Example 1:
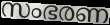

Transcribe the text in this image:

സംഭരണ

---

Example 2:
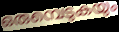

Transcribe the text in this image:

ഒരുമ്പെടുകയും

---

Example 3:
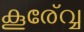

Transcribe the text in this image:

കൂര്വ്വേ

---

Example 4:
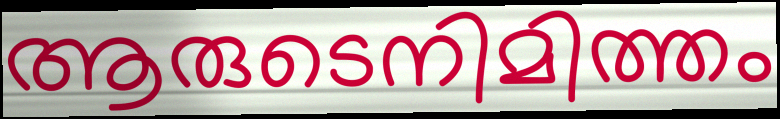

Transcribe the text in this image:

ആരുടെനിമിത്തം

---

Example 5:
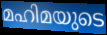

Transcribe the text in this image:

മഹിമയുടെ